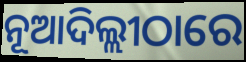
ନୂଆଦିଲ୍ଲୀଠାରେ